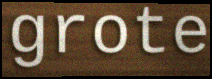
grote